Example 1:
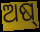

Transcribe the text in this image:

ଅଷ୍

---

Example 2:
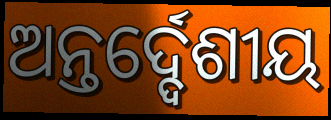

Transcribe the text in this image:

ଅନ୍ତର୍ଦ୍ଦେଶୀୟ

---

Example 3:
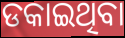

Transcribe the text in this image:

ଡକାଇଥିବା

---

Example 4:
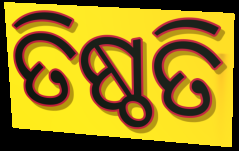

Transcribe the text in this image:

ତିଷ୍ଠତି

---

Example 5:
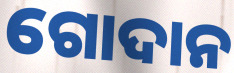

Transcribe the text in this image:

ଗୋଦାନ